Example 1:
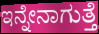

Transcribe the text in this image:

ಇನ್ನೇನಾಗುತ್ತೆ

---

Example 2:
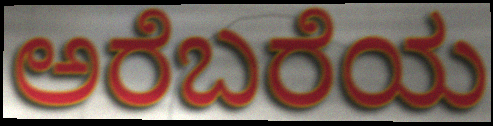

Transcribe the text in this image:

ಅರೆಬರೆಯ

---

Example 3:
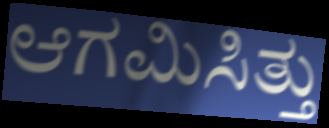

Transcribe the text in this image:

ಆಗಮಿಸಿತ್ತು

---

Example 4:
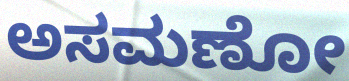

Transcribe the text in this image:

ಅಸಮಣೋ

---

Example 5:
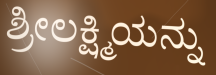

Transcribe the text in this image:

ಶ್ರೀಲಕ್ಷ್ಮಿಯನ್ನು